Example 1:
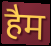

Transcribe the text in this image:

हैम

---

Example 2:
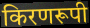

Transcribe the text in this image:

किरणरूपी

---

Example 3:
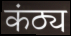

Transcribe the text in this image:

कंठ्य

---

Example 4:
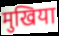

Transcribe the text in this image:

मुखिया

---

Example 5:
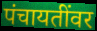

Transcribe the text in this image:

पंचायतींवर